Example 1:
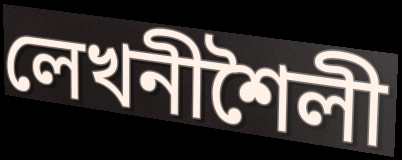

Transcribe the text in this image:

লেখনীশৈলী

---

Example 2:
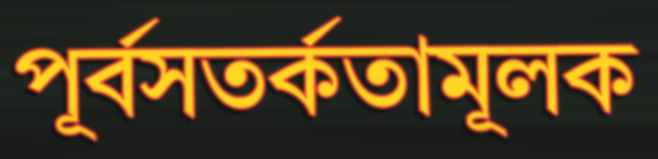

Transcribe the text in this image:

পূর্বসতর্কতামূলক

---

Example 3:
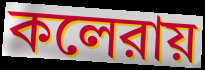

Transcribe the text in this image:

কলেরায়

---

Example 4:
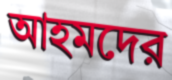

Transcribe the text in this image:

আহমদের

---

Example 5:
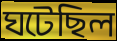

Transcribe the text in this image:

ঘটেছিল